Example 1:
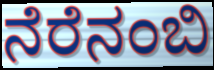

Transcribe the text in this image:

ನೆರೆನಂಬಿ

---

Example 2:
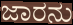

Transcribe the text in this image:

ಜಾರನು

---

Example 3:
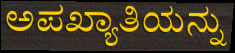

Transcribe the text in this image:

ಅಪಖ್ಯಾತಿಯನ್ನು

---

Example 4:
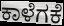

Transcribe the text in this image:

ಕಾಳೆಗಕೆ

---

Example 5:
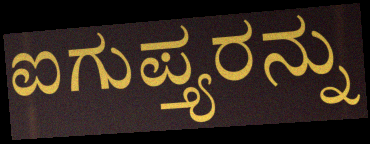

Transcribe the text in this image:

ಐಗುಪ್ತ್ಯರನ್ನು